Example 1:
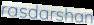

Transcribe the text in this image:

rasdarshan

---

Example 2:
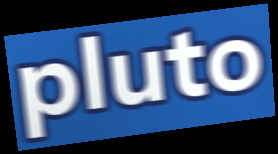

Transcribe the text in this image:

pluto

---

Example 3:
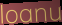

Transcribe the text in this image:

loanu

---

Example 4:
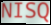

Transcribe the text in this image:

NISQ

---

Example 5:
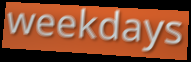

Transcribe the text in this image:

weekdays